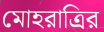
মোহরাত্রির